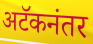
अटॅकनंतर